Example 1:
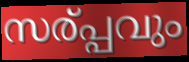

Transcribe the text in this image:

സര്പ്പവും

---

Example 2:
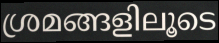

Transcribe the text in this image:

ശ്രമങ്ങളിലൂടെ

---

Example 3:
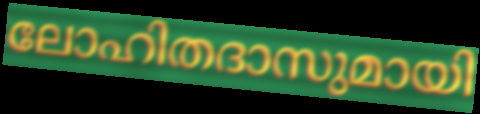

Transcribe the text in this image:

ലോഹിതദാസുമായി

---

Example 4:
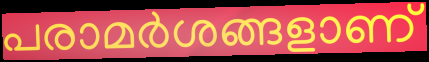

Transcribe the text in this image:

പരാമർശങ്ങളാണ്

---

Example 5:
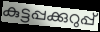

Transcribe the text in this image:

കുട്ടപ്പക്കുറുപ്പ്